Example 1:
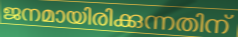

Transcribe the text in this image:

ജനമായിരിക്കുന്നതിന്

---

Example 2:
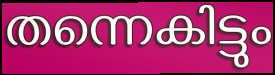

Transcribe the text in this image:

തന്നെകിട്ടും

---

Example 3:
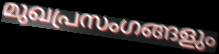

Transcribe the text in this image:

മുഖപ്രസംഗങ്ങളും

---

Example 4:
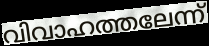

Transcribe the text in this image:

വിവാഹത്തലേന്ന്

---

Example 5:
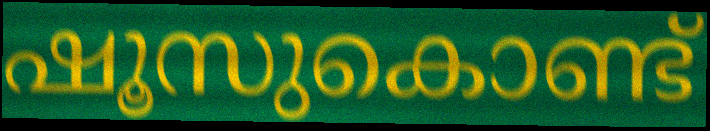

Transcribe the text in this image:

ഷൂസുകൊണ്ട്